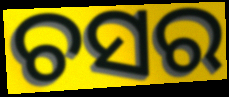
ଚସର